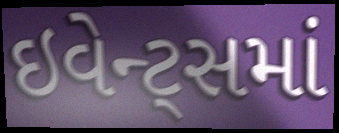
ઇવેન્ટ્સમાં